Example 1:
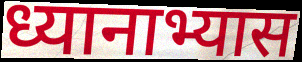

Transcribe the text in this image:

ध्यानाभ्यास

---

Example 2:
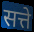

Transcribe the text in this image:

सत्ते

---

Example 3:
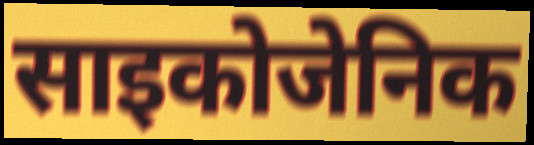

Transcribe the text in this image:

साइकोजेनिक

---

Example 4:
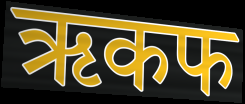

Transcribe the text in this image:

ऋकफ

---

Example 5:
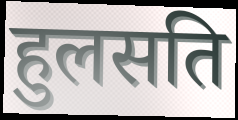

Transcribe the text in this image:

हुलसति